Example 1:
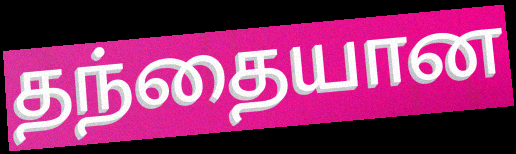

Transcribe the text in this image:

தந்தையான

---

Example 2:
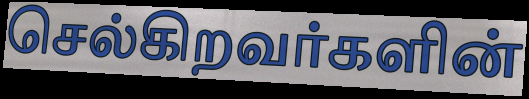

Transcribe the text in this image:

செல்கிறவர்களின்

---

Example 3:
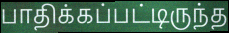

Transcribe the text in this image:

பாதிக்கப்பட்டிருந்த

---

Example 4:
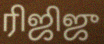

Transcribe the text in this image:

ரிஜிஜு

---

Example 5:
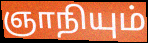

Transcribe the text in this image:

ஞாநியும்